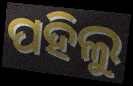
ପହିଲୁ